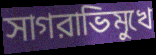
সাগরাভিমুখে